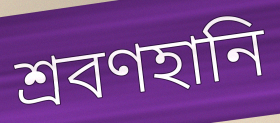
শ্রবণহানি